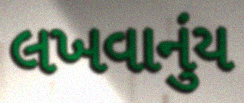
લખવાનુંય